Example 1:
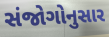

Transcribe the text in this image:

સંજોગોનુસાર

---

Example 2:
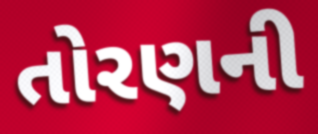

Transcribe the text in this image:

તોરણની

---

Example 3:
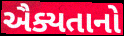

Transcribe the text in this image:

ઐક્યતાનો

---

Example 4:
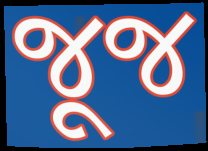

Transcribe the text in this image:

જૂજ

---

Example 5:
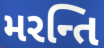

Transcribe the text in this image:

મરન્તિ